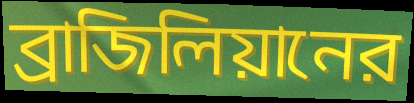
ব্রাজিলিয়ানের